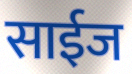
साईज